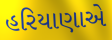
હરિયાણાએ